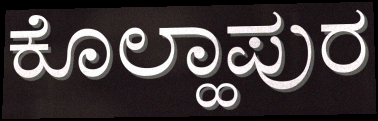
ಕೊಲ್ಹಾಪುರ